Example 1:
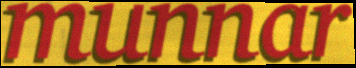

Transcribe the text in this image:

munnar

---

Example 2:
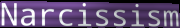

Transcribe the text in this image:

Narcissism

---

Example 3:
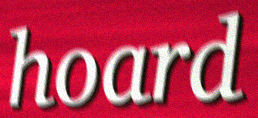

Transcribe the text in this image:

hoard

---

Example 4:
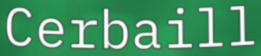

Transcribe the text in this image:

Cerbaill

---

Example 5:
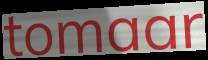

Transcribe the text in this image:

tomaar